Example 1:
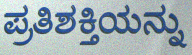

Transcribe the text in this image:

ಪ್ರತಿಶಕ್ತಿಯನ್ನು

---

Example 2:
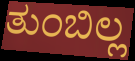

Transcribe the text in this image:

ತುಂಬಿಲ್ಲ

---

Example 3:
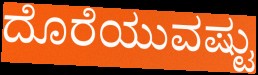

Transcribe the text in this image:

ದೊರೆಯುವಷ್ಟು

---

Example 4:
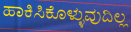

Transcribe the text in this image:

ಹಾಕಿಸಿಕೊಳ್ಳುವುದಿಲ್ಲ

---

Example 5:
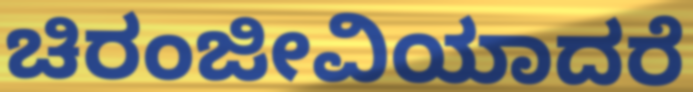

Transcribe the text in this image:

ಚಿರಂಜೀವಿಯಾದರೆ